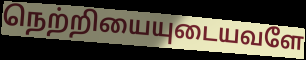
நெற்றியையுடையவளே